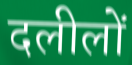
दलीलों